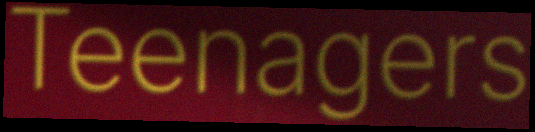
Teenagers